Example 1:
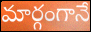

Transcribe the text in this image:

మార్గంగానే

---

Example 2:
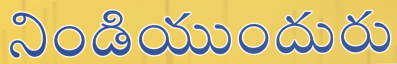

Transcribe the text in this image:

నిండియుందురు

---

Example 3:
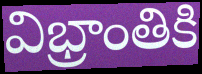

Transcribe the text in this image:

విభ్రాంతికి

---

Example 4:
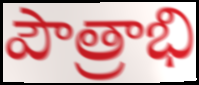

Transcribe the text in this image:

పౌత్రాభి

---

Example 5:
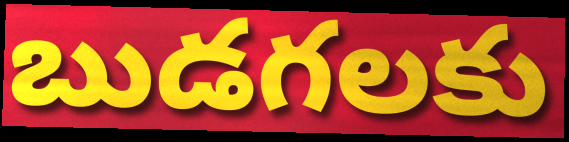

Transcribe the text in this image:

బుడగలకు